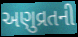
અણુવ્રતની